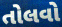
તોલવો